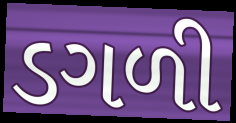
ડગળી